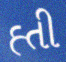
હ્તી